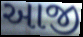
આજી